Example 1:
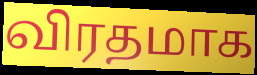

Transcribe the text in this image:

விரதமாக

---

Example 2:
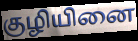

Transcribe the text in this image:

குழியினை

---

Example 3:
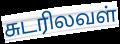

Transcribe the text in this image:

சுடரிலவள்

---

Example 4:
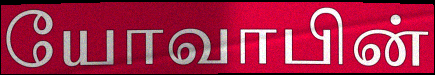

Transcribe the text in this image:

யோவாபின்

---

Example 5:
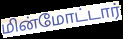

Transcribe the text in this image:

மின்மோட்டார்